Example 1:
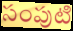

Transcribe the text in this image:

సంపుటి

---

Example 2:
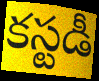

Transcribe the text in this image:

కస్టడీ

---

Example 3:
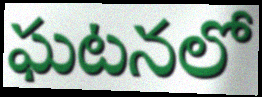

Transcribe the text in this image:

ఘటనలో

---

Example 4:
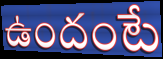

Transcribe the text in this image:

ఉందంటే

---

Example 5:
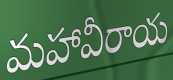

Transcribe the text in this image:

మహావీరాయ